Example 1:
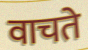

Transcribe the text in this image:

वाचते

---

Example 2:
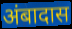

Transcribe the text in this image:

अंबादास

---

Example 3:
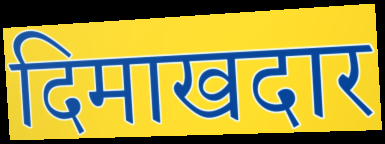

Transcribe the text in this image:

दिमाखदार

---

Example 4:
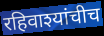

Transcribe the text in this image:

रहिवाश्यांचीच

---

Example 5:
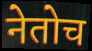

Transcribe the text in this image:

नेतोच